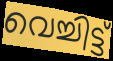
വെച്ചിട്ട്